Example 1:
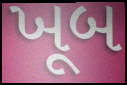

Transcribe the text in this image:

ખૂબ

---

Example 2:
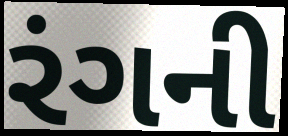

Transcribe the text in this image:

રંગની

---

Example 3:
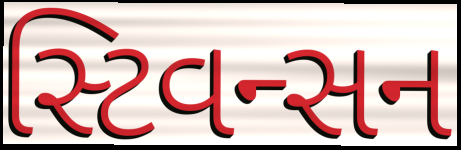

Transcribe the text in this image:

સ્ટિવન્સન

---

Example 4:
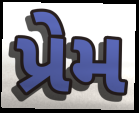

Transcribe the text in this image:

પ્રેમ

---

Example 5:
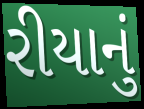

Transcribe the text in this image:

રીયાનું